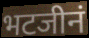
भटजीनं